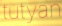
tutyan